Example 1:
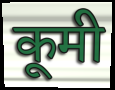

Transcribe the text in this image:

कूमी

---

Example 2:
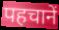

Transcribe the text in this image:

पहचानें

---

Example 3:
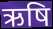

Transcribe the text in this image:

ऋषि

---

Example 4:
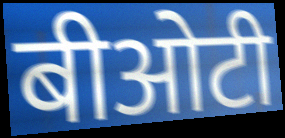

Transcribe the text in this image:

बीओटी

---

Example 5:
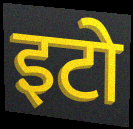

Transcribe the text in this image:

इटो